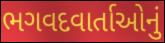
ભગવદવાર્તાઓનું